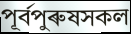
পূৰ্বপুৰুষসকল